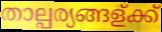
താല്പര്യങ്ങള്ക്ക്